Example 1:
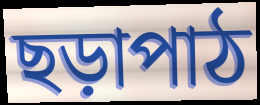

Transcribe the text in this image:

ছড়াপাঠ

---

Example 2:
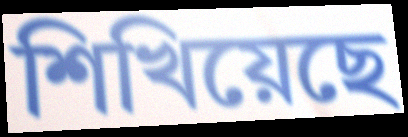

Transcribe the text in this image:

শিখিয়েছে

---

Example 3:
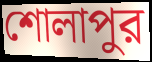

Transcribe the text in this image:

শোলাপুর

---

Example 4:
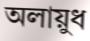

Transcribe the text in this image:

অলায়ুধ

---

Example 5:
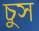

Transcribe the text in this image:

চুস